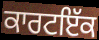
ਕਾਰਟਇੱਕ